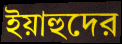
ইয়াহুদের